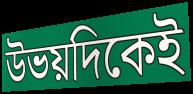
উভয়দিকেই